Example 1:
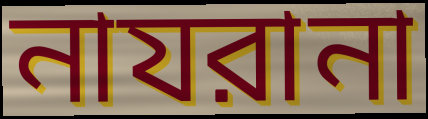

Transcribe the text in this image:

নাযরানা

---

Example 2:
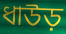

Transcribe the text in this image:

ধাউড়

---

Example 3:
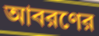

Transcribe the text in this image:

আবরণের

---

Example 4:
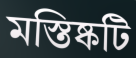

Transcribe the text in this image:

মস্তিষ্কটি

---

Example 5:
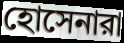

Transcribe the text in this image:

হোসেনারা